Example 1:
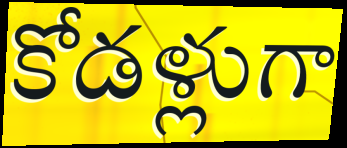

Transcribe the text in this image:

కోడళ్లుగా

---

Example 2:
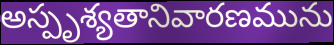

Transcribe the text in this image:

అస్పృశ్యతానివారణమును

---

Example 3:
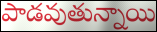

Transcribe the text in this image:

పాడవుతున్నాయి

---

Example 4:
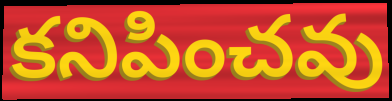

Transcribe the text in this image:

కనిపించవు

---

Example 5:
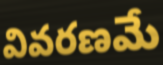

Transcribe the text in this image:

వివరణమే